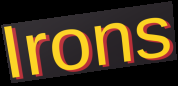
Irons